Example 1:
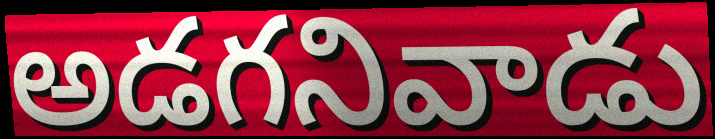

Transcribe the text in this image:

అడగనివాడు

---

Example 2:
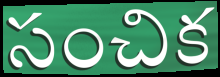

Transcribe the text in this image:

సంచిక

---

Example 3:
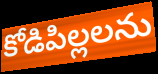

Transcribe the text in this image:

కోడిపిల్లలను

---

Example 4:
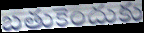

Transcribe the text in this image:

బతుకెందుకు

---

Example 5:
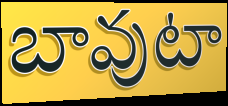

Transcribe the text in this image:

బావుటా